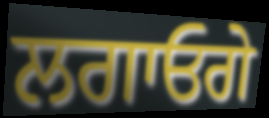
ਲਗਾਓਗੇ